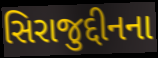
સિરાજુદ્દીનના